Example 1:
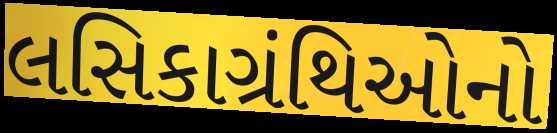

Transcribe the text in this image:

લસિકાગ્રંથિઓનો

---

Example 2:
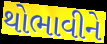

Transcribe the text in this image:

થોભાવીને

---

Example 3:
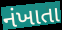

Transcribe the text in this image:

નંખાતા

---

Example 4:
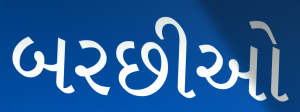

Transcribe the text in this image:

બરછીઓ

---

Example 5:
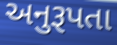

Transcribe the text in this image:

અનુરૂપતા